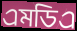
এমডিএ